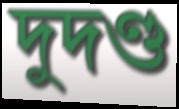
দুদণ্ড